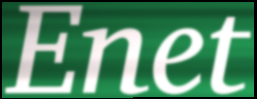
Enet